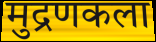
मुद्रणकला